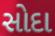
સોદા